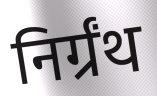
निर्ग्रंथ